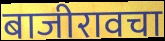
बाजीरावचा